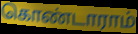
கொண்டாராம்